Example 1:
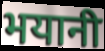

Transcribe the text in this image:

भयानी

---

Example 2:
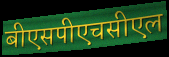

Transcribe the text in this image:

बीएसपीएचसीएल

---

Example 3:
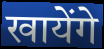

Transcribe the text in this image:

खायेंगे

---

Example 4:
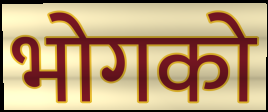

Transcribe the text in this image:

भोगको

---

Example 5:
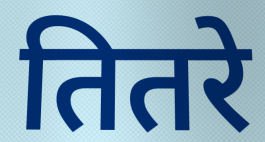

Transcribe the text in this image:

तितरे